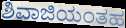
ಶಿವಾಜಿಯಂತಹ